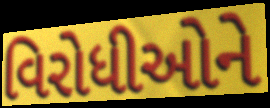
વિરોધીઓને